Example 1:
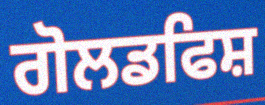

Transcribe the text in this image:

ਗੋਲਡਫਿਸ਼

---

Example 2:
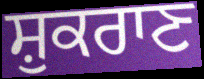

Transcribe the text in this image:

ਸ਼ੁਕਰਾਣ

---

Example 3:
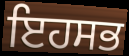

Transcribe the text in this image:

ਇਹਸਭ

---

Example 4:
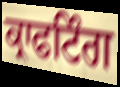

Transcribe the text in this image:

ਕ੍ਰਾਫਟਿੰਗ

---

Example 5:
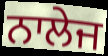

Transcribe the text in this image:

ਨਾਲੇਜ